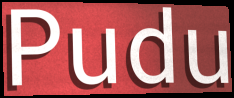
Pudu